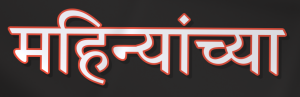
महिन्यांच्या